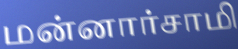
மன்னார்சாமி